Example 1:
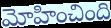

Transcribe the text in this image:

మోహించింది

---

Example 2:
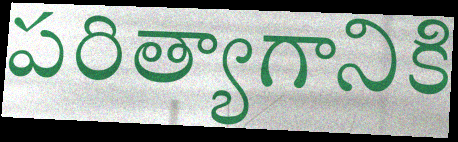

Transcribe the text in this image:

పరిత్యాగానికి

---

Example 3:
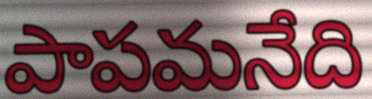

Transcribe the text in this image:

పాపమనేది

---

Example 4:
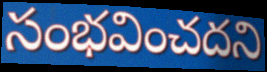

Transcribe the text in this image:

సంభవించదని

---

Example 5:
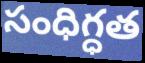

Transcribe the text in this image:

సంధిగ్ధత